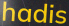
hadis